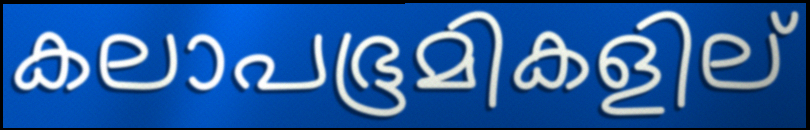
കലാപഭൂമികളില്